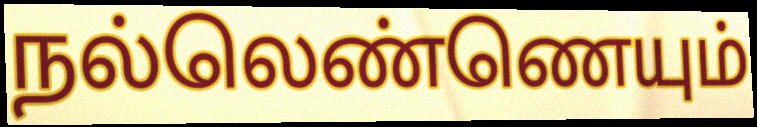
நல்லெண்ணெயும்